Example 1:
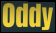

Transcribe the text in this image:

Oddy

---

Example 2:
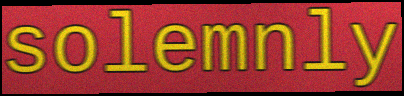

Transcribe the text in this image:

solemnly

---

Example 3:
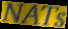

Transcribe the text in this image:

NATs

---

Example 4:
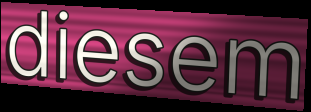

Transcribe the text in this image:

diesem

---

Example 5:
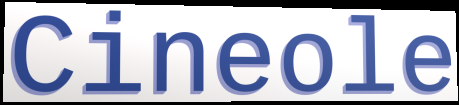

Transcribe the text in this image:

Cineole